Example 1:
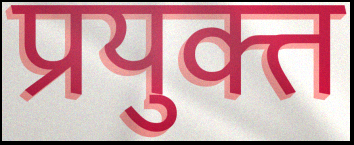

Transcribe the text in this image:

प्रयुक्त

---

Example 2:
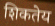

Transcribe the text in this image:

शिकतेय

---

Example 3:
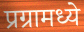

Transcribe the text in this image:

प्रग्रामध्ये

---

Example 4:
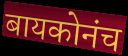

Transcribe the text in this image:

बायकोनंच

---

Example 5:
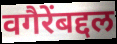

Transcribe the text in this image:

वगैरेंबद्दल